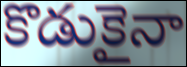
కొడుకైనా